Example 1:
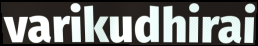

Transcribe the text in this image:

varikudhirai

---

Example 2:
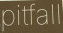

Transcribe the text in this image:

pitfall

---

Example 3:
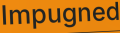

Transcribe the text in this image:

Impugned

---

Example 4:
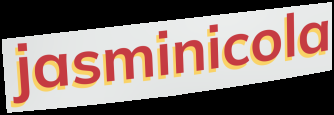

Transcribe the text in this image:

jasminicola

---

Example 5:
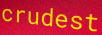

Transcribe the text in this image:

crudest